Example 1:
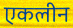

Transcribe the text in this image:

एकलीन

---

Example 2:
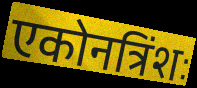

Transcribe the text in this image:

एकोनत्रिंशः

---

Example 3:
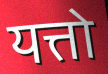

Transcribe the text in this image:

यत्तो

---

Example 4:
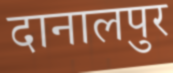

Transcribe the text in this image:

दानालपुर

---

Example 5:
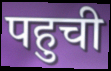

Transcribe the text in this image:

पहुची